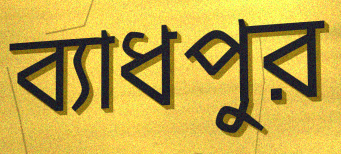
ব্যাধপুর